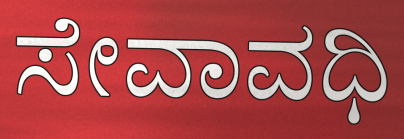
ಸೇವಾವಧಿ